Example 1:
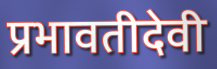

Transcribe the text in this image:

प्रभावतीदेवी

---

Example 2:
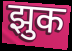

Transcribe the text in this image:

झुक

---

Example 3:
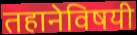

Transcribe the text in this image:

तहानेविषयी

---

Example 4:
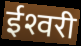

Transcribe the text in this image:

ईश्वरी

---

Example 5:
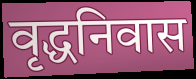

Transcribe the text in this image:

वृद्धनिवास